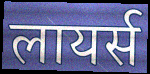
लायर्स